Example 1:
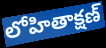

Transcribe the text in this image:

లోహితాక్షణ్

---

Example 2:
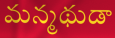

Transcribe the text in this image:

మన్మథుడా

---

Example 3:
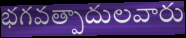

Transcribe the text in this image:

భగవత్పాదులవారు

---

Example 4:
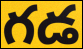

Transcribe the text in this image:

గడ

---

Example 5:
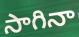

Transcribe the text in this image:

సాగినా